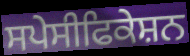
ਸਪੇਸੀਫਿਕੇਸ਼ਨ